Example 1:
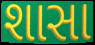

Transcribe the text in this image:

શાસા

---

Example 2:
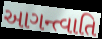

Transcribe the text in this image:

આગન્ત્વાતિ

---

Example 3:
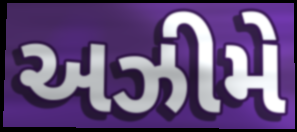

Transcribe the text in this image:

અઝીમે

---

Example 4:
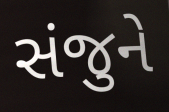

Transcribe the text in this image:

સંજુને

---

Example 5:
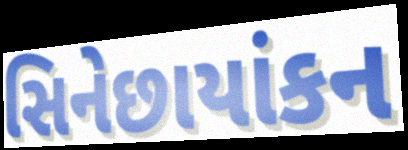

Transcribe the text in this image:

સિનેછાયાંકન